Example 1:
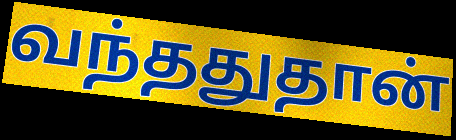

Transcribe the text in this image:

வந்ததுதான்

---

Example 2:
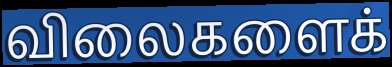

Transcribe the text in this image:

விலைகளைக்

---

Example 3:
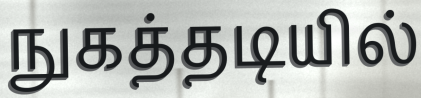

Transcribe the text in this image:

நுகத்தடியில்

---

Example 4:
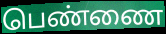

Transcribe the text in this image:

பெண்ணை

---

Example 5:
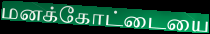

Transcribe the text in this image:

மனக்கோட்டையை